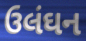
ઉલંઘન